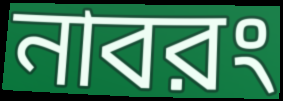
নাবরং